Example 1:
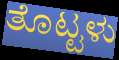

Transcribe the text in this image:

ತೊಟ್ಟಳು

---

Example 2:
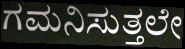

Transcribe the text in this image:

ಗಮನಿಸುತ್ತಲೇ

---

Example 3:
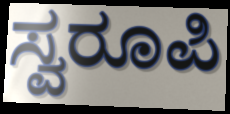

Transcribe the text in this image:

ಸ್ವರೂಪಿ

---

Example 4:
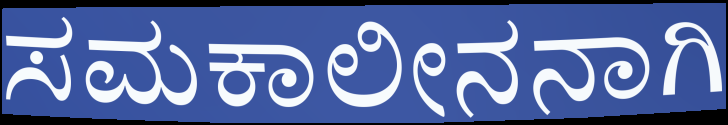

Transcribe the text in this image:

ಸಮಕಾಲೀನನಾಗಿ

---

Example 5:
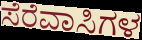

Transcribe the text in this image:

ಸೆರೆವಾಸಿಗಳ